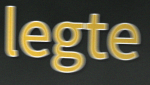
legte